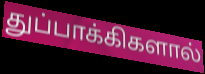
துப்பாக்கிகளால்